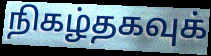
நிகழ்தகவுக்